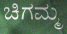
ಚಿಗಮ್ಮ